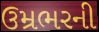
ઉમ્રભરની